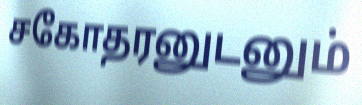
சகோதரனுடனும்